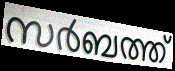
സർബത്ത്